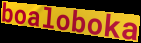
boaloboka